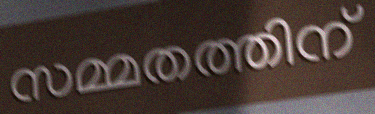
സമ്മതത്തിന്